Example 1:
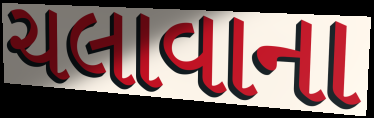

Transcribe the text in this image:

ચલાવાના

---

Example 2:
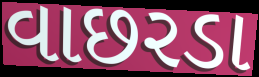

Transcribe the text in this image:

વાછરડા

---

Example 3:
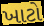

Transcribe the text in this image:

ખાટો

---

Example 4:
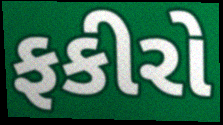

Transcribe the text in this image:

ફકીરો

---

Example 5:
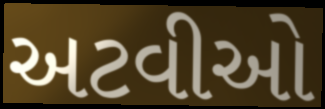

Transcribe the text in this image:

અટવીઓ